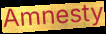
Amnesty